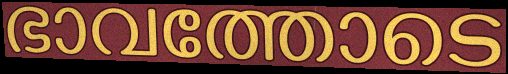
ഭാവത്തോടെ